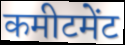
कमीटमेंट